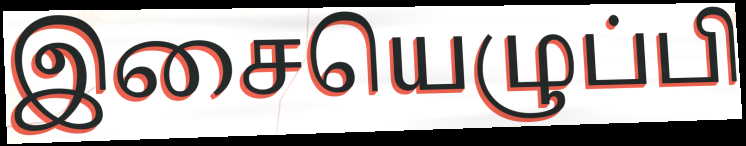
இசையெழுப்பி